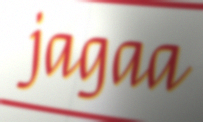
jagaa